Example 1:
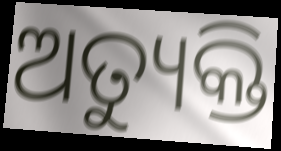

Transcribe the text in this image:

ଅତ୍ୟୁକ୍ତି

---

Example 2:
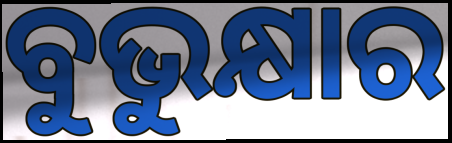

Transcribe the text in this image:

ବୁଭୁକ୍ଷାର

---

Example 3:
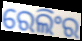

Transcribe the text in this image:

ରେଲିଂର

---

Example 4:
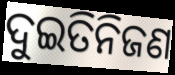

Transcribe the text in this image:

ଦୁଇତିନିଜଣ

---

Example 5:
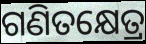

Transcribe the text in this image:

ଗଣିତକ୍ଷେତ୍ର